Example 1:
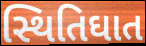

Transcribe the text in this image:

સ્થિતિઘાત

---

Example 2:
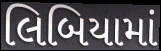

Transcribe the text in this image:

લિબિયામાં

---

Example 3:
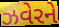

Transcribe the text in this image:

ઝવેરને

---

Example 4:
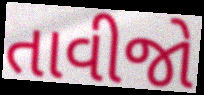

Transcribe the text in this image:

તાવીજો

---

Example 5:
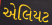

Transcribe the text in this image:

એલિયટ